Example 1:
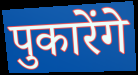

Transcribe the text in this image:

पुकारेंगे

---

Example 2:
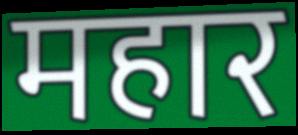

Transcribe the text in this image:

महार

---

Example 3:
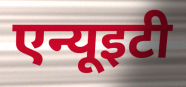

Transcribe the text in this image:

एन्यूइटी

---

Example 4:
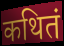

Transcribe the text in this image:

कथितं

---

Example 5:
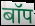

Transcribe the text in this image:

बॉप